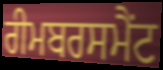
ਰੀਮਬਰਸਮੈਂਟ